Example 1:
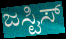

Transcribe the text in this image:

ಜಸ್ಟಿಸ್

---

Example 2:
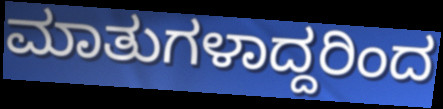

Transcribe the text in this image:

ಮಾತುಗಳಾದ್ದರಿಂದ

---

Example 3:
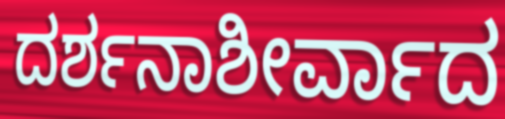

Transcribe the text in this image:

ದರ್ಶನಾಶೀರ್ವಾದ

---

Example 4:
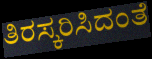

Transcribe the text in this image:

ತಿರಸ್ಕರಿಸಿದಂತೆ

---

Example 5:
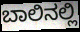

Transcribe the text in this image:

ಬಾಲಿನಲ್ಲಿ